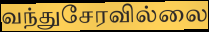
வந்துசேரவில்லை